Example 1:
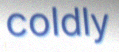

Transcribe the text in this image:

coldly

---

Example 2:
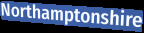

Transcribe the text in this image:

Northamptonshire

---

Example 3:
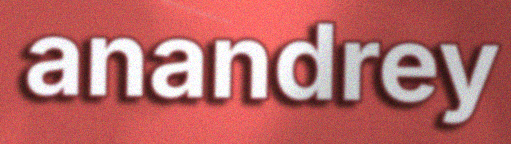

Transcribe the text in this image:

anandrey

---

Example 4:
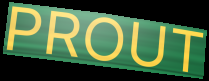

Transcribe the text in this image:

PROUT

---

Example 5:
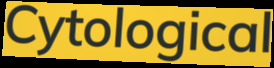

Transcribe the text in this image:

Cytological